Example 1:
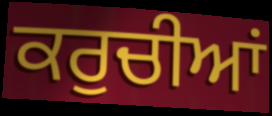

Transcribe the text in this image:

ਕਰੁਚੀਆਂ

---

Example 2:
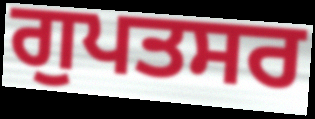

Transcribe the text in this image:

ਗੁਪਤਸਰ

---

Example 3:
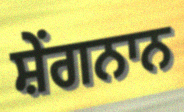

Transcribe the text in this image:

ਸ਼ੇਂਗਨਾਨ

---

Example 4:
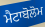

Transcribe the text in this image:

ਮੈਟਾਬੋਲੋਮ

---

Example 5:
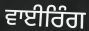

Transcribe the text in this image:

ਵਾਈਰਿੰਗ